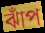
ঝাঁপ